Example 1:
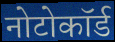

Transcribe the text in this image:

नोटोकॉर्ड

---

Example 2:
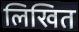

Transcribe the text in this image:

लिखित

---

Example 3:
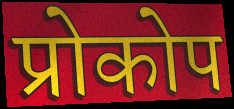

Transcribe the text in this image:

प्रोकोप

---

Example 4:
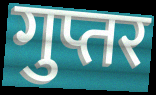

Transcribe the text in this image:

गुप्तर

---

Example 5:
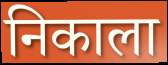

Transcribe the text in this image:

निकाला